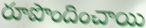
రూపొందించాయి